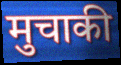
मुचाकी